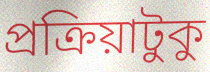
প্রক্রিয়াটুকু